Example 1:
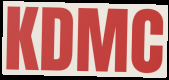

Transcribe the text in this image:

KDMC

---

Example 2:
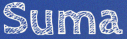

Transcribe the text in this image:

Suma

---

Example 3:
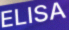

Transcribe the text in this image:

ELISA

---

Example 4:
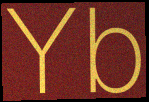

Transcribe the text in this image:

Yb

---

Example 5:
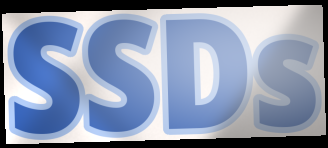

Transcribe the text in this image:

SSDs